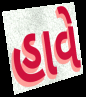
હાવે